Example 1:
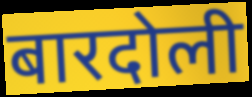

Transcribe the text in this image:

बारदोली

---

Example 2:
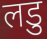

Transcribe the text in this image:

लडु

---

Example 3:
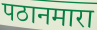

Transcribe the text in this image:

पठानमारा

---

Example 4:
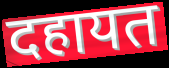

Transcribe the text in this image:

दहायत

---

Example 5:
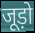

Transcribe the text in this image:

जूड़ो